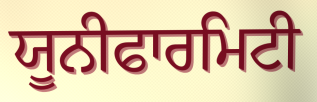
ਯੂਨੀਫਾਰਮਿਟੀ